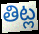
తిట్ల